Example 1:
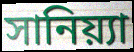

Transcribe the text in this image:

সানিয়্যা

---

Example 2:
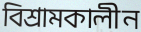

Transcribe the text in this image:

বিশ্রামকালীন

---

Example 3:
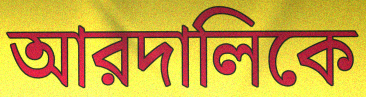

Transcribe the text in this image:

আরদালিকে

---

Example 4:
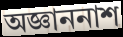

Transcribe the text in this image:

অজ্ঞাননাশ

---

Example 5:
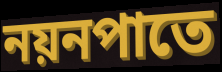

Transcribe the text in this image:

নয়নপাতে